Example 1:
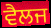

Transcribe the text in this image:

ਵੈਲਜ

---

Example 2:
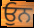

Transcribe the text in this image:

ਓੁਨ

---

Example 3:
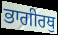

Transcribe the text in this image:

ਭਾਗੀਰਥੁ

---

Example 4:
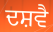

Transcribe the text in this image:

ਦਸ਼ਵੈ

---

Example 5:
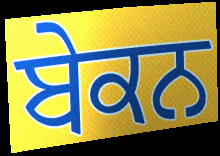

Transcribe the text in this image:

ਬੇਕਨ